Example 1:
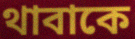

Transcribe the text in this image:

থাবাকে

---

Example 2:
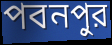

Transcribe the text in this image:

পবনপুর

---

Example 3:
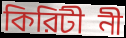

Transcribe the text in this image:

কিরিটীনী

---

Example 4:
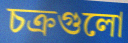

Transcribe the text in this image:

চক্রগুলো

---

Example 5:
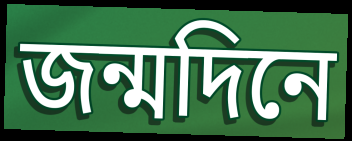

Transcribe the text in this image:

জন্মদিনে